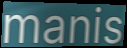
manis